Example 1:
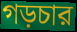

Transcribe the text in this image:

গড়চার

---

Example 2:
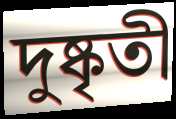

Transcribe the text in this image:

দুষ্কৃতী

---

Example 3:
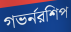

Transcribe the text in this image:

গভর্নরশিপ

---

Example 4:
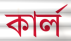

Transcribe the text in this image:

কার্ল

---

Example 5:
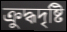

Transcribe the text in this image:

ক্রুদ্ধদৃষ্টি